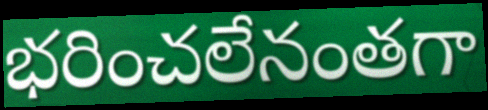
భరించలేనంతగా